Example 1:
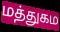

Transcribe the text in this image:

மத்துகம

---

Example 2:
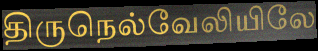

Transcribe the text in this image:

திருநெல்வேலியிலே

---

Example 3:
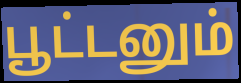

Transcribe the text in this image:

பூட்டனும்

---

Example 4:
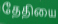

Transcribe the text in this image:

தேதியை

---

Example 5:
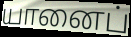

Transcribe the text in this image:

யானைப்